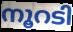
നൂറടി